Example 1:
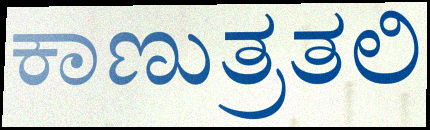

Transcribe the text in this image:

ಕಾಣುತ್ರತಲಿ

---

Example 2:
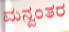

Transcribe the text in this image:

ಮನ್ವಂತರ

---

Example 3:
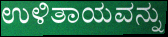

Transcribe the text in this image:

ಉಳಿತಾಯವನ್ನು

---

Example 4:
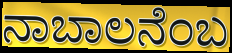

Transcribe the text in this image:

ನಾಬಾಲನೆಂಬ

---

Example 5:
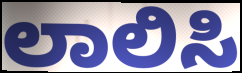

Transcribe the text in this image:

ಲಾಲಿಸಿ